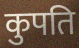
कुपति